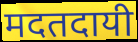
मदतदायी